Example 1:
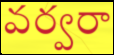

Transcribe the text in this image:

వర్వరా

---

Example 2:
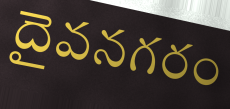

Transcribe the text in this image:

దైవనగరం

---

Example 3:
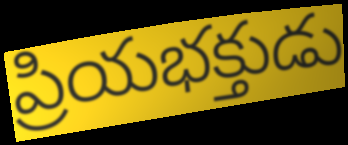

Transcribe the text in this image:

ప్రియభక్తుడు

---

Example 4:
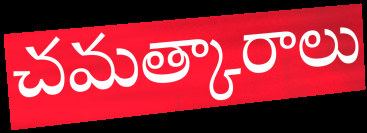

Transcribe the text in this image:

చమత్కారాలు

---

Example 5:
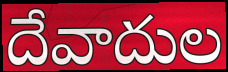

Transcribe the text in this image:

దేవాదుల